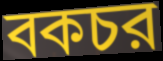
বকচর